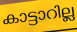
കാട്ടാറില്ല